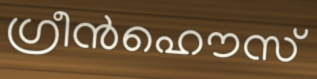
ഗ്രീൻഹൌസ്